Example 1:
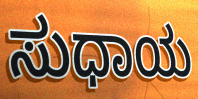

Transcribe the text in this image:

ಸುಧಾಯ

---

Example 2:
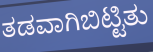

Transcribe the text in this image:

ತಡವಾಗಿಬಿಟ್ಟಿತು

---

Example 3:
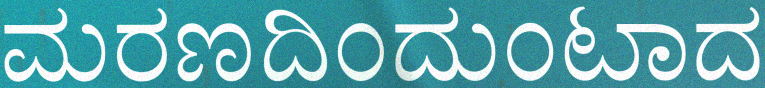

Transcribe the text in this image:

ಮರಣದಿಂದುಂಟಾದ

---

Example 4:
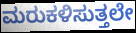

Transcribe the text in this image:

ಮರುಕಳಿಸುತ್ತಲೇ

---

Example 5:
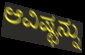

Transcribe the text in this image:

ಆವಿಷ್ಟನ್ನು